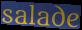
salade